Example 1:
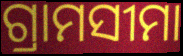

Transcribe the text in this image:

ଗ୍ରାମସୀମା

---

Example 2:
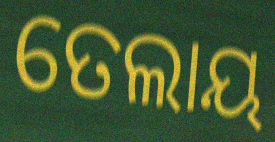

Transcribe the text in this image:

ତେଲାୟ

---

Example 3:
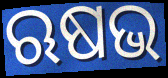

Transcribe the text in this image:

ଋଷଭ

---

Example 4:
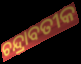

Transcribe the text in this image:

ଚନ୍ଦ୍ରାବତୀକ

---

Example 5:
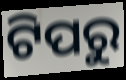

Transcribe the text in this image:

ଟିପରୁ